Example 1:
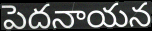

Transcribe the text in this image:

పెదనాయన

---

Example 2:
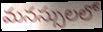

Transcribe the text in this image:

మనస్సులలో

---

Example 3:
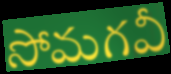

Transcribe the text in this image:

సోమగవీ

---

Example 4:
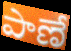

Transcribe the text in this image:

పాణే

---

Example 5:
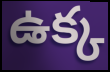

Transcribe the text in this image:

ఉక్క